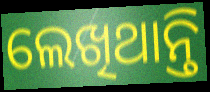
ଲେଖିଥାନ୍ତି